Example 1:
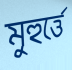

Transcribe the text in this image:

মুহুর্ত্তে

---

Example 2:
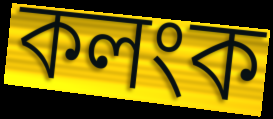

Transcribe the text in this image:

কলংক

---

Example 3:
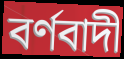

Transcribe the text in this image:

বর্ণবাদী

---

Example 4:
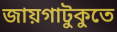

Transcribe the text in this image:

জায়গাটুকুতে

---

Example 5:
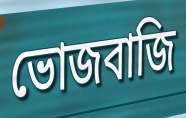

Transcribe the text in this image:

ভোজবাজি